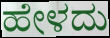
ಹೇಳದು